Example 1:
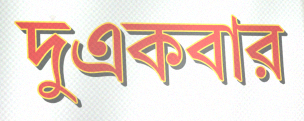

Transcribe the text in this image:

দুএকবার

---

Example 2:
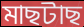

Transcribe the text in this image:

মাছটাছ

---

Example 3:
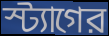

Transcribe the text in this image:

স্ট্যাগের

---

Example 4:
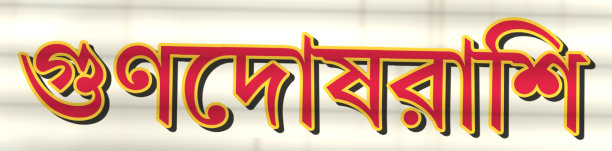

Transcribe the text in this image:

গুণদোষরাশি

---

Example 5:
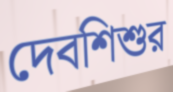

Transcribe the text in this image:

দেবশিশুর